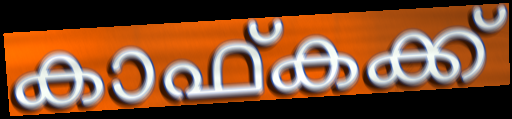
കാഫ്കക്ക്